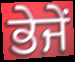
ਭੇਜੇਂ